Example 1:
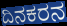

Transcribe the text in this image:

ದಿನಕರನ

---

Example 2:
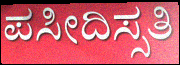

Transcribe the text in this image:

ಪಸೀದಿಸ್ಸತಿ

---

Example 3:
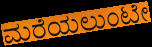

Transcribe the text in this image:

ಮರೆಯಲುಂಟೇ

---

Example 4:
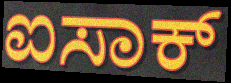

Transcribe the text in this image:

ಐಸಾಕ್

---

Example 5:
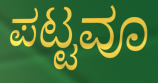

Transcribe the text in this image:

ಪಟ್ಟವೂ